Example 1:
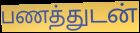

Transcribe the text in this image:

பணத்துடன்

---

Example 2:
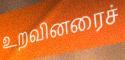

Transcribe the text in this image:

உறவினரைச்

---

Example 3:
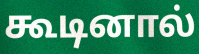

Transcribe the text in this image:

கூடினால்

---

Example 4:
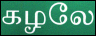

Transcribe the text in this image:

கழலே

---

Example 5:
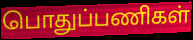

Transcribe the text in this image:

பொதுப்பணிகள்